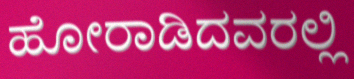
ಹೋರಾಡಿದವರಲ್ಲಿ